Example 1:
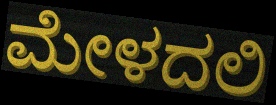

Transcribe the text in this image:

ಮೇಳದಲಿ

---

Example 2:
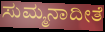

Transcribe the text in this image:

ಸುಮ್ಮನಾದೀತೆ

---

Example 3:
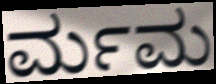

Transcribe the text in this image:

ರ್ಮಮ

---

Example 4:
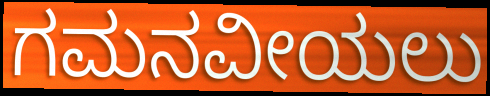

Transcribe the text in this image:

ಗಮನವೀಯಲು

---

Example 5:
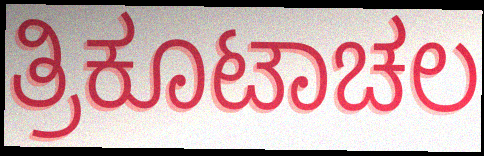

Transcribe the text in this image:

ತ್ರಿಕೂಟಾಚಲ